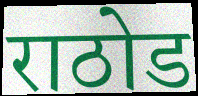
राठोड